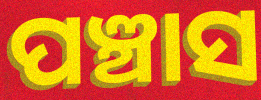
ପଞ୍ଚାସ